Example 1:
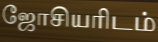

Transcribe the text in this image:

ஜோசியரிடம்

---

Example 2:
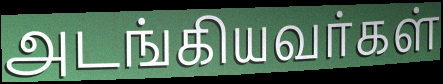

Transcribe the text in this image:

அடங்கியவர்கள்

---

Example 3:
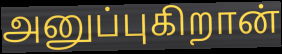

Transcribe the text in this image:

அனுப்புகிறான்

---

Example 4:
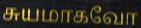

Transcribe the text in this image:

சுயமாகவோ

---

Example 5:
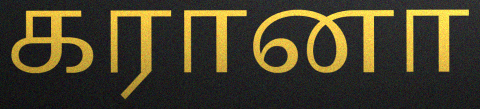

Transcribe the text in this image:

கரானா